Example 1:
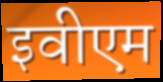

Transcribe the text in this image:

इवीएम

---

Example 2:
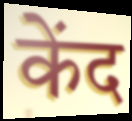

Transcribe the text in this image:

केंद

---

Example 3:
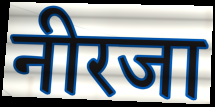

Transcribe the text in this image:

नीरजा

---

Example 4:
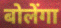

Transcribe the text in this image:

बोलेंगा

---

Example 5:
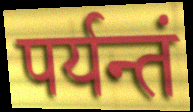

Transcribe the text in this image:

पर्यन्तं